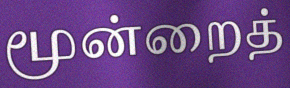
மூன்றைத்